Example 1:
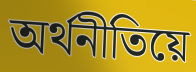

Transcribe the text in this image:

অৰ্থনীতিয়ে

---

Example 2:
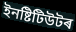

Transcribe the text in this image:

ইনষ্টিটিউটৰ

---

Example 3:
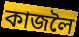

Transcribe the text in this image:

কাজলৈ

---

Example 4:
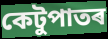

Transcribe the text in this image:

কেটুপাতৰ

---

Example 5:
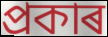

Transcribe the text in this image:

প্ৰকাৰ